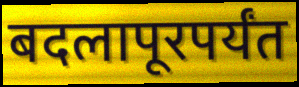
बदलापूरपर्यंत